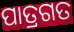
ପାତ୍ରଗତ